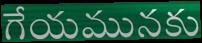
గేయమునకు